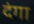
दंगा